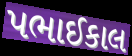
પભાઈકાલ